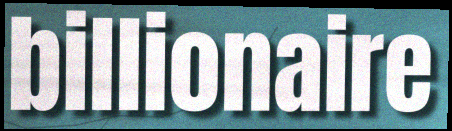
billionaire